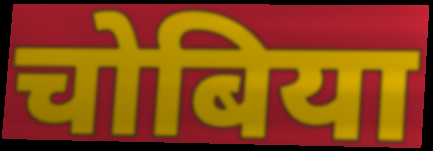
चोबिया